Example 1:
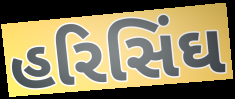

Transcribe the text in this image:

હરિસિંઘ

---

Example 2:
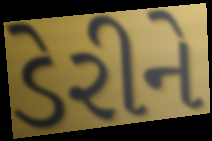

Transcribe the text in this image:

ડેરીને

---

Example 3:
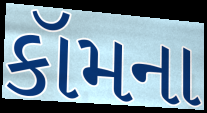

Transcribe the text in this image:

કૉમના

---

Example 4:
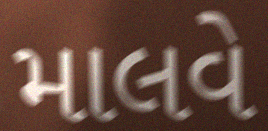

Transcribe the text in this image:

માલવે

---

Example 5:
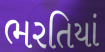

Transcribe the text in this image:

ભરતિયાં